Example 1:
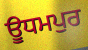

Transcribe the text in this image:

ਊਧਮਪੁਰ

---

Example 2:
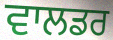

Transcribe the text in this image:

ਵਾਲਡਰ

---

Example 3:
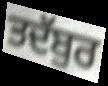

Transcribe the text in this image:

ਤਦੱਬੁਰ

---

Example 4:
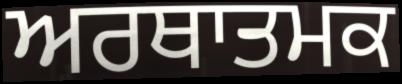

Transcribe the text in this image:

ਅਰਥਾਤਮਕ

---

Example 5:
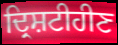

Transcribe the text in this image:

ਦ੍ਰਿਸ਼ਟੀਹੀਣ